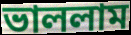
ভাললাম